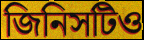
জিনিসটিও